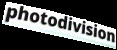
photodivision